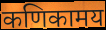
कणिकामय